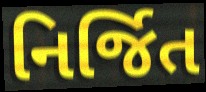
નિર્જિત